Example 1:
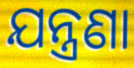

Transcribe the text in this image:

ଯନ୍ତ୍ରଣା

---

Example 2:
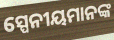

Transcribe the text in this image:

ସ୍ପେନୀୟମାନଙ୍କ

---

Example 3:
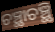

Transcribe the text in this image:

ଚଞ୍ଛାଚଞ୍ଛି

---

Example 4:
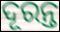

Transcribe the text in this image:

ଦୂରନ୍ତ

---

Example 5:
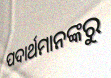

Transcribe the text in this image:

ପଦାର୍ଥମାନଙ୍କରୁ